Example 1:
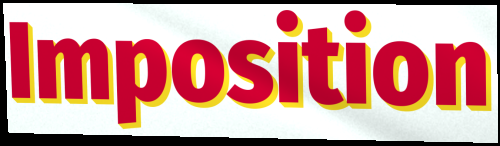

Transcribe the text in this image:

Imposition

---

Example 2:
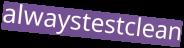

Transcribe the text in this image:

alwaystestclean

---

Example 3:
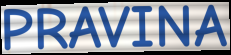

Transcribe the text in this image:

PRAVINA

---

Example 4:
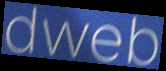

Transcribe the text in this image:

dweb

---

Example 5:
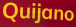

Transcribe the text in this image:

Quijano